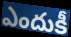
ఎందుకీ